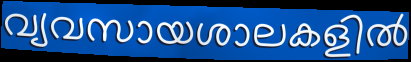
വ്യവസായശാലകളിൽ